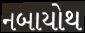
નબાયોથ